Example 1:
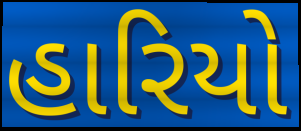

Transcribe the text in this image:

હારિયો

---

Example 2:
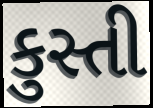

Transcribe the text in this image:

કુસ્તી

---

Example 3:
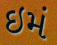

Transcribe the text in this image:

ઇમં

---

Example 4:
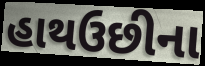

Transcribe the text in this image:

હાથઉછીના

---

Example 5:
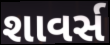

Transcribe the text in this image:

શાવર્સ